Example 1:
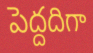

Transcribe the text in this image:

పెద్దదిగా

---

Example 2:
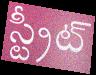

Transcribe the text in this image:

స్ట్రీట్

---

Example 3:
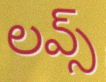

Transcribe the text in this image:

లవ్స్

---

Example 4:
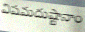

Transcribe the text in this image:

విషమదుష్టానాం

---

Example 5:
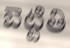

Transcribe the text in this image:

బెట్టితి